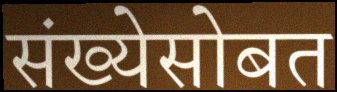
संख्येसोबत